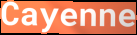
Cayenne